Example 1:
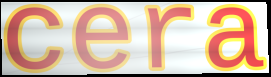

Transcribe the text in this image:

cera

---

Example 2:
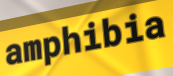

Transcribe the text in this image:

amphibia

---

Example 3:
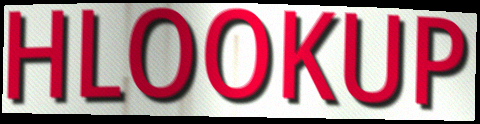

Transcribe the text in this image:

HLOOKUP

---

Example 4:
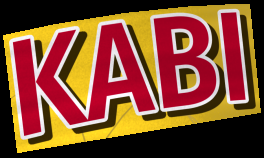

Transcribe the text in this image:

KABI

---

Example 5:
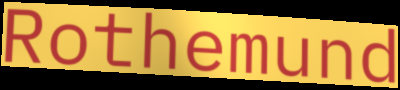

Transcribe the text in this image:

Rothemund